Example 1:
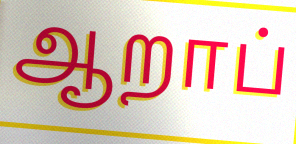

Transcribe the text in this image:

ஆறாப்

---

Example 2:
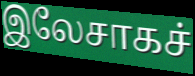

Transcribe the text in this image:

இலேசாகச்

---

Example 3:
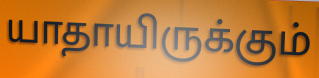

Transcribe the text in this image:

யாதாயிருக்கும்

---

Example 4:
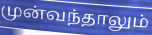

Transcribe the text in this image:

முன்வந்தாலும்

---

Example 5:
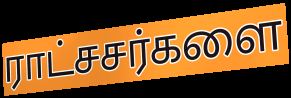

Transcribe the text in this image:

ராட்சசர்களை